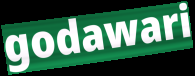
godawari